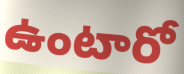
ఉంటారో